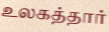
உலகத்தார்